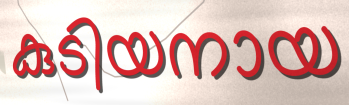
കുടിയനായ